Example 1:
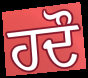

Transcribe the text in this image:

ਹਦੌ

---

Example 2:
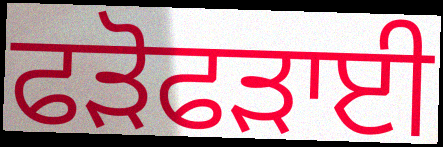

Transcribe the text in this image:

ਫੜੋਫੜਾਈ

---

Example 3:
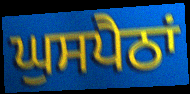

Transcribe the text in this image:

ਘੁਸਪੈਠਾਂ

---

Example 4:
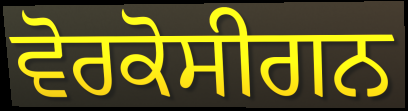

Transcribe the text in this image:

ਵੋਰਕੋਸੀਗਨ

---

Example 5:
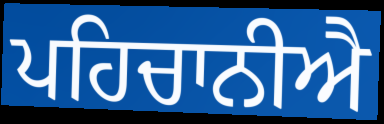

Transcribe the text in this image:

ਪਹਿਚਾਨੀਐ